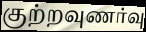
குற்றவுணர்வு